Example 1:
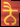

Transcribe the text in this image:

ਨੈ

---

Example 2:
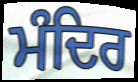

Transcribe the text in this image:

ਮੰਦਿਰ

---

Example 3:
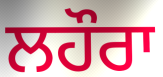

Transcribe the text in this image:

ਲਹੌਰਾ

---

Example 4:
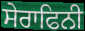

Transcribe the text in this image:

ਸੇਰਾਫਿਨੀ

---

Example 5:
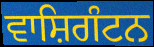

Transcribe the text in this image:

ਵਾਸ਼ਿਗੰਟਨ